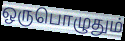
ஒருபொழுதும்